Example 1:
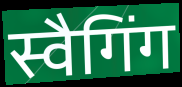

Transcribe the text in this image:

स्वैगिंग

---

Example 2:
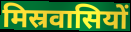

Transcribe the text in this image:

मिस्रवासियों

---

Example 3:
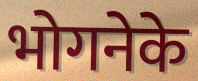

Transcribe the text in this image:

भोगनेके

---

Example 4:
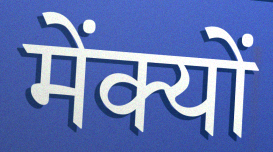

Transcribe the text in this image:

मेंक्यों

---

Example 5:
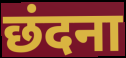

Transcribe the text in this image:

छंदना